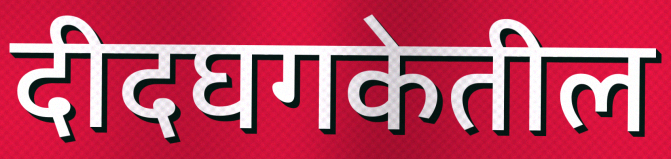
दीदघगकेतील